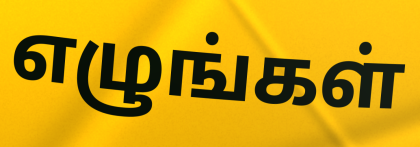
எழுங்கள்